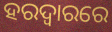
ହରଦ୍ୱାରରେ